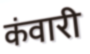
कंवारी